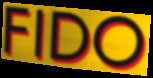
FIDO